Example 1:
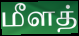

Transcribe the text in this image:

மீளத்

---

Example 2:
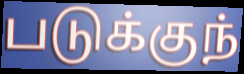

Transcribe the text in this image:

படுக்குந்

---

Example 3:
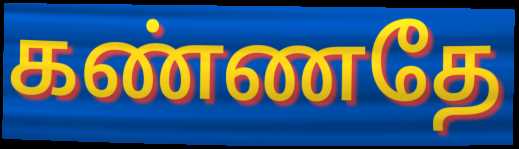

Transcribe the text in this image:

கண்ணதே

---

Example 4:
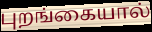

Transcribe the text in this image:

புறங்கையால்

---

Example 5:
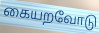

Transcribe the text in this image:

கையறவோடு